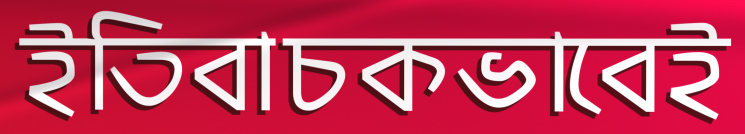
ইতিবাচকভাবেই